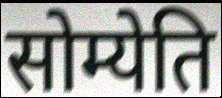
सोम्येति